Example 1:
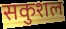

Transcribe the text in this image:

सकुशल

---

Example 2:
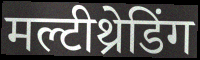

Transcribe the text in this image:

मल्टीथ्रेडिंग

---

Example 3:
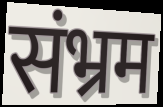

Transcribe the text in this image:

संभ्रम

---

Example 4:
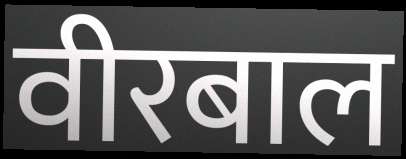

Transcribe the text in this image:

वीरबाल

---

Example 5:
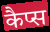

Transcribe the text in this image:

कैप्स